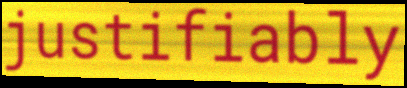
justifiably